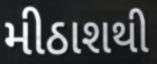
મીઠાશથી